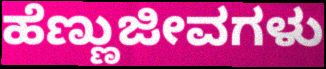
ಹೆಣ್ಣುಜೀವಗಳು